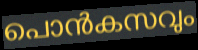
പൊൻകസവും